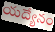
యద్యేనం